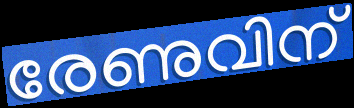
രേണുവിന്